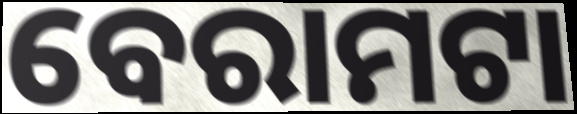
ବେରାମଟା